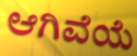
ಆಗಿವೆಯೆ